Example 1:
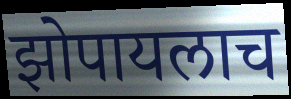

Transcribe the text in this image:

झोपायलाच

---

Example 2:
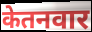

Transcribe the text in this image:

केतनवार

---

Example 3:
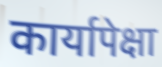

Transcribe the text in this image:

कार्यापेक्षा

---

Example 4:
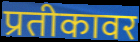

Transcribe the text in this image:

प्रतीकावर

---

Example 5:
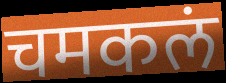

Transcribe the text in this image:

चमकलं